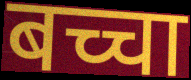
बच्चा